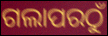
ଗଲାପରଠୁଁ